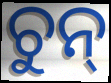
ଚୁନ୍